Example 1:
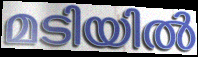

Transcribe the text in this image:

മടിയിൽ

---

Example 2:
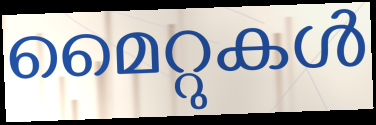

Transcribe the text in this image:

മൈറ്റുകൾ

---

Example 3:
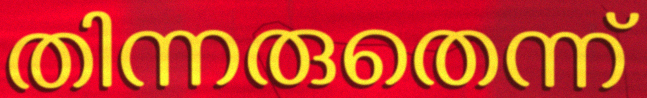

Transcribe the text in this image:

തിന്നരുതെന്ന്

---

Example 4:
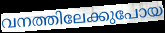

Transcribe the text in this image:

വനത്തിലേക്കുപോയ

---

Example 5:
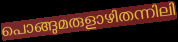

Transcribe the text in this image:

പൊങ്ങുമരുളാഴിതന്നിലി